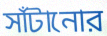
সাঁটানোর